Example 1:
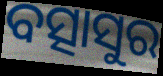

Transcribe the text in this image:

ବତ୍ସାସୁର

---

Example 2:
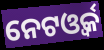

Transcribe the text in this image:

ନେଟଓ୍ବର୍କ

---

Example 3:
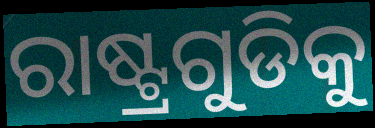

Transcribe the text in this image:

ରାଷ୍ଟ୍ରଗୁଡିକୁ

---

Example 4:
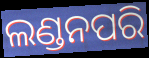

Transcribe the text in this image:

ଲଣ୍ଡନପରି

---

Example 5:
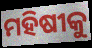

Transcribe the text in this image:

ମହିଷୀକୁ